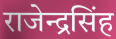
राजेन्द्रसिंह